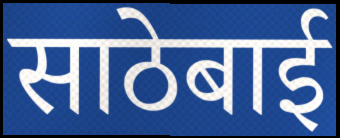
साठेबाई